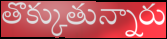
తొక్కుతున్నారు